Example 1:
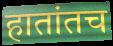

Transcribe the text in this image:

हातांतच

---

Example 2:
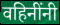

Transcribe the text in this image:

वहिनींनी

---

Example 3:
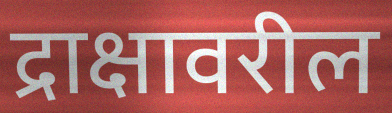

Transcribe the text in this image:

द्राक्षावरील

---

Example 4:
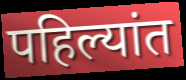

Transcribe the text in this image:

पहिल्यांत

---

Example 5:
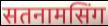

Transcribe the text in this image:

सतनामसिंग